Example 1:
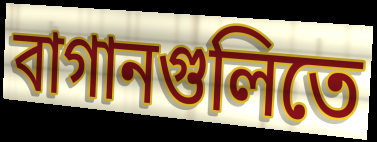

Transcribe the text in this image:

বাগানগুলিতে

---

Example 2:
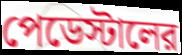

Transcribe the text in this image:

পেডেস্টালের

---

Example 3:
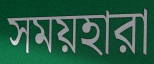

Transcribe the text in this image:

সময়হারা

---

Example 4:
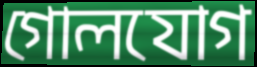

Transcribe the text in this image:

গোলযোগ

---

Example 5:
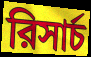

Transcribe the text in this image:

রিসার্চ